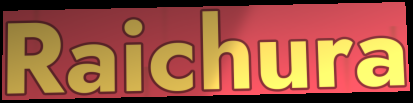
Raichura